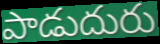
పాడుదురు